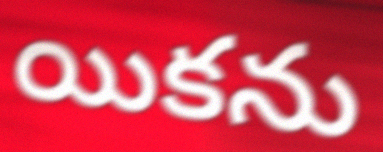
యికను